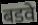
बडवे